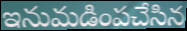
ఇనుమడింపచేసిన